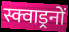
स्क्वाड्रनों